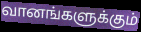
வானங்களுக்கும்